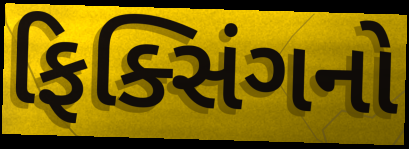
ફિક્સિંગનો